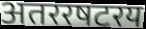
अतररषटरय